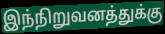
இந்நிறுவனத்துக்கு